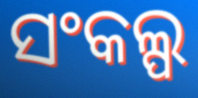
ସଂକଲ୍ପ